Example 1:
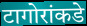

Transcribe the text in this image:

टागोरांकडे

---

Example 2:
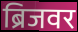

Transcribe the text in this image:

ब्रिजवर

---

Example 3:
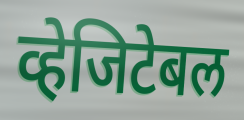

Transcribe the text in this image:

व्हेजिटेबल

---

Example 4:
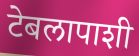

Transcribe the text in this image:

टेबलापाशी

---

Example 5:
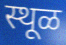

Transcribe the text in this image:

स्थूळ